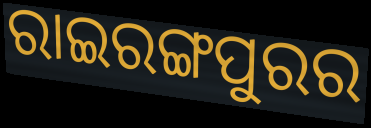
ରାଇରଙ୍ଗପୁରର